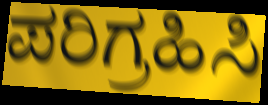
ಪರಿಗ್ರಹಿಸಿ